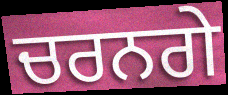
ਚਰਨਗੇ